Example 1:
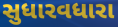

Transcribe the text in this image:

સુધારવધારા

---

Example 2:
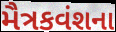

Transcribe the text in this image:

મૈત્રકવંશના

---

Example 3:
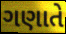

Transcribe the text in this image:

ગણાતે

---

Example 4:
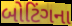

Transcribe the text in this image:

બોટિંગના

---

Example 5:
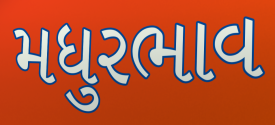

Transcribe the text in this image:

મધુરભાવ